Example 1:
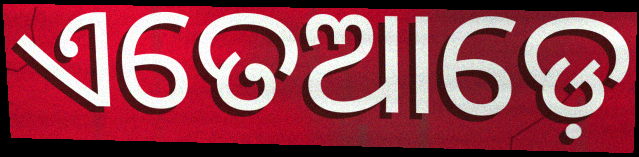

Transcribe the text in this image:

ଏତେଆଡ଼େ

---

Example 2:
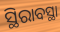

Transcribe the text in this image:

ସ୍ଥିରାବସ୍ଥା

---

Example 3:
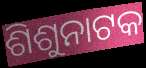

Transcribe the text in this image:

ଶିଶୁନାଟକ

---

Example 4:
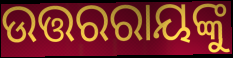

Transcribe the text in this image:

ଉତ୍ତରରାୟଙ୍କୁ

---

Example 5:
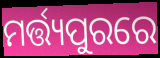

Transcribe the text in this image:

ମର୍ତ୍ତ୍ୟପୁରରେ